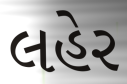
લહેર